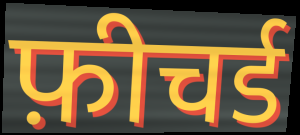
फ़ीचर्ड